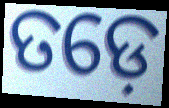
ତଡ଼େ